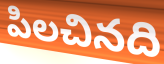
పిలచినది